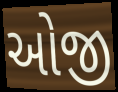
ઓજી